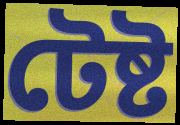
টেষ্ট